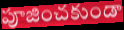
పూజించకుండా